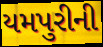
યમપુરીની